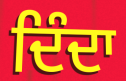
ਦਿੰਦਾ